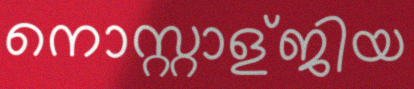
നൊസ്റ്റാള്ജിയ